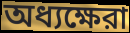
অধ্যক্ষেরা